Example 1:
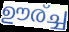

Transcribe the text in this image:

ഊര്ച്ച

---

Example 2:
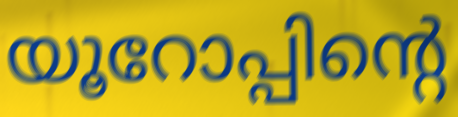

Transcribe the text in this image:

യൂറോപ്പിന്റെ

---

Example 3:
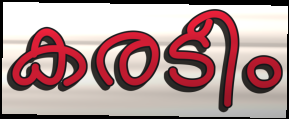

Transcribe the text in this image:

കരടീം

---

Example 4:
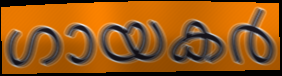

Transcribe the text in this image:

ഗായകർ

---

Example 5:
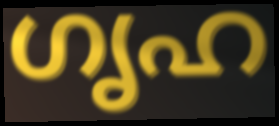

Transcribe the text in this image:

ഗൃഹ